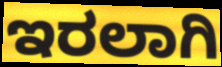
ಇರಲಾಗಿ